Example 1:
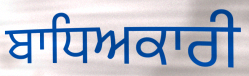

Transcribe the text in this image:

ਬਾਧਿਅਕਾਰੀ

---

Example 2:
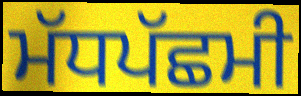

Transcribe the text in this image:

ਮੱਧਪੱਛਮੀ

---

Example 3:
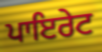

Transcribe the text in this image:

ਪਾਇਰੇਟ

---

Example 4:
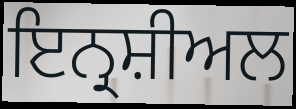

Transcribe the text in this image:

ਇਨ੍ਰਸ਼ੀਅਲ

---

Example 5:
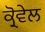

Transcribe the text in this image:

ਕ੍ਰੋਵੇਲ